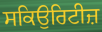
ਸਕਿਉਰਿਟੀਜ਼